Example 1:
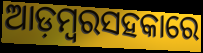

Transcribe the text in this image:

ଆଡ଼ମ୍ବରସହକାରେ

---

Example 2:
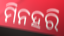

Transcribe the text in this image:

ମିନହରି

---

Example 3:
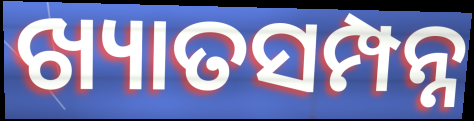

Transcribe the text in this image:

ଖ୍ୟାତସମ୍ପନ୍ନ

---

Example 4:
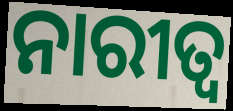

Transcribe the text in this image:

ନାରୀତ୍ୱ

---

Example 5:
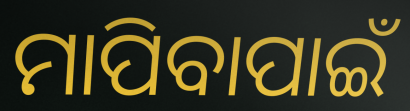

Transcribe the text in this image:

ମାପିବାପାଇଁ